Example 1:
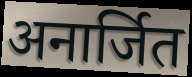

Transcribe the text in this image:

अनार्जित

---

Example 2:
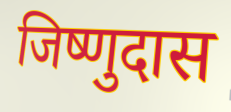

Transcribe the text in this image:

जिष्णुदास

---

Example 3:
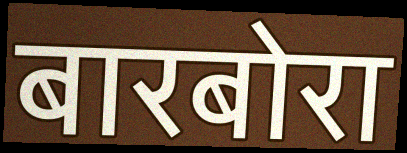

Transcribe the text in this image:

बारबोरा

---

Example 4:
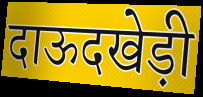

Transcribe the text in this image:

दाऊदखेड़ी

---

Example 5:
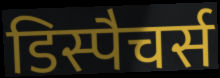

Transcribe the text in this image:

डिस्पैचर्स